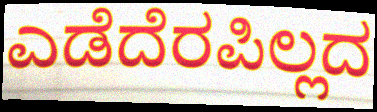
ಎಡೆದೆರಪಿಲ್ಲದ